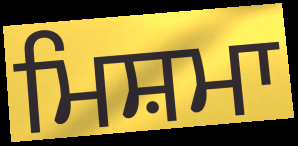
ਮਿਸ਼ਮਾ